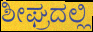
ಶೀಘ್ರದಲ್ಲಿ